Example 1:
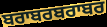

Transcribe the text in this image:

ਬਰਾਬਰਬਰਾਬਰ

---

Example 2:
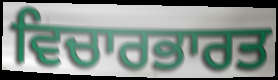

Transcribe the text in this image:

ਵਿਚਾਰਭਾਰਤ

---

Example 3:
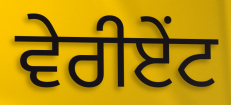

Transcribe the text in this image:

ਵੇਰੀਏਂਟ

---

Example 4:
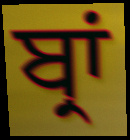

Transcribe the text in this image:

ਬ੍ਰਾਂ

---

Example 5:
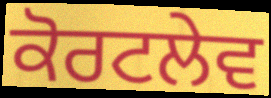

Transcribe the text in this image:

ਕੋਰਟਲੇਵ